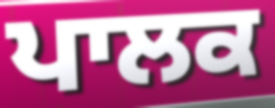
ਪਾਲਕ